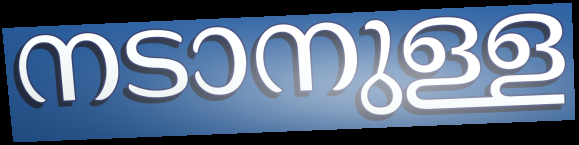
നടാനുള്ള